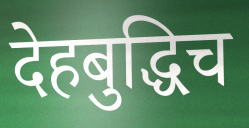
देहबुद्धिच